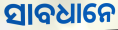
ସାବଧାନେ